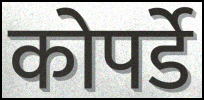
कोपर्डे